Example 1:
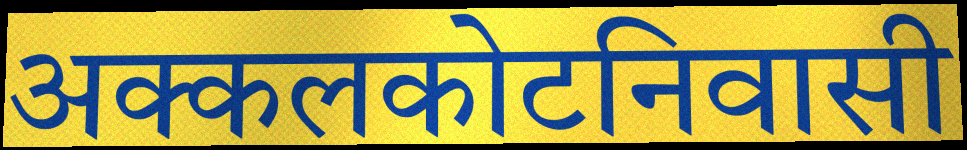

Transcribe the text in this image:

अक्कलकोटनिवासी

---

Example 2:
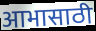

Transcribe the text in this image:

आभासाठी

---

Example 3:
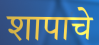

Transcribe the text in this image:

शापाचे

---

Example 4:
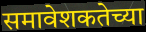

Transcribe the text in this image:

समावेशकतेच्या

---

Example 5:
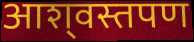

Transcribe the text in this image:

आश्वस्तपण